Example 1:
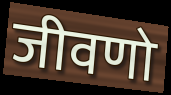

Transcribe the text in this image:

जीवणो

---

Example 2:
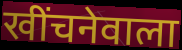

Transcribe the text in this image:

खींचनेवाला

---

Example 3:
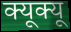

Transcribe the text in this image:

क्यूक्यू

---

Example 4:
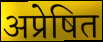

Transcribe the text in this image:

अप्रेषित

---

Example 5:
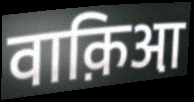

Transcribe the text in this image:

वाक़िआ़